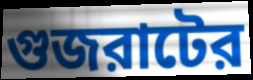
গুজরাটের